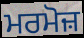
ਮਰਮੋਜ਼